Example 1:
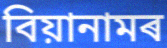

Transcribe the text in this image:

বিয়ানামৰ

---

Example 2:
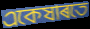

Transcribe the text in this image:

একেষাৰতে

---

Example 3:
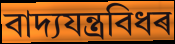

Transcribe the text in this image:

বাদ্যযন্ত্ৰবিধৰ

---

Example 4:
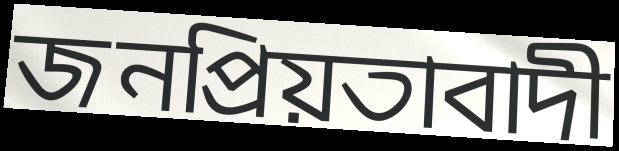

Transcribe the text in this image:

জনপ্ৰিয়তাবাদী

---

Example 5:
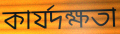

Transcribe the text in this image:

কাৰ্যদক্ষতা